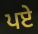
ਪਏ